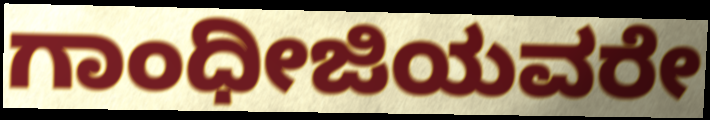
ಗಾಂಧೀಜಿಯವರೇ